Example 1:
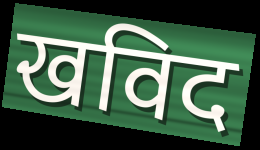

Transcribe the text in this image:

खविद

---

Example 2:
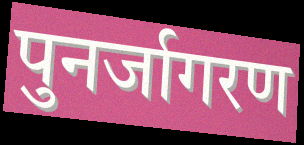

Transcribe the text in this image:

पुनर्जागरण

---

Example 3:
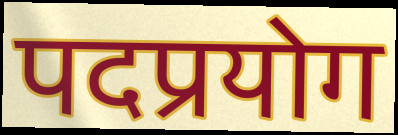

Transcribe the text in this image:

पदप्रयोग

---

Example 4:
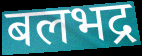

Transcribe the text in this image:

बलभद्र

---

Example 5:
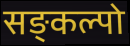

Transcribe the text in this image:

सङ्कल्पो